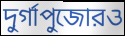
দুর্গাপুজোরও